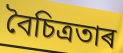
বৈচিত্ৰতাৰ